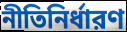
নীতিনির্ধারণ